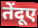
तेंदूए